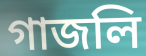
গাজলি